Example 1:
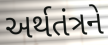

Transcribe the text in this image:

અર્થતંત્રને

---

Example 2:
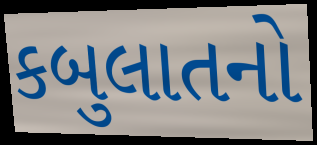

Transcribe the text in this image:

કબુલાતનો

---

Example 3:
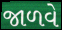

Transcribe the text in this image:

જાળવે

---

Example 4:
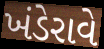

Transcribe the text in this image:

ખંડેરાવે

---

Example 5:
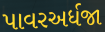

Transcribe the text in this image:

પાવરઅર્ધજા